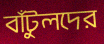
বাঁটুলদের